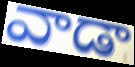
వాడా